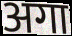
अगा